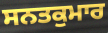
ਸਨਤਕੁਮਾਰ